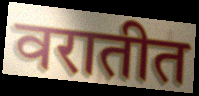
वरातीत